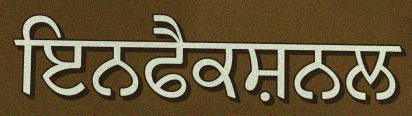
ਇਨਫੈਕਸ਼ਨਲ